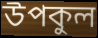
উপকুল